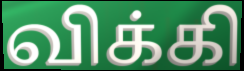
விக்கி